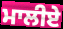
ਮਾਲੀਏ